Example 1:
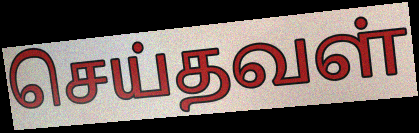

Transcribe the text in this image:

செய்தவள்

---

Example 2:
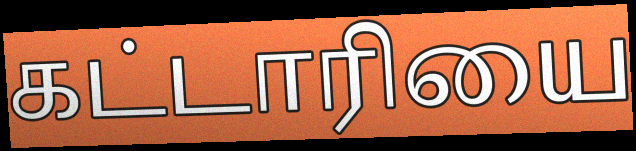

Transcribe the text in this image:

கட்டாரியை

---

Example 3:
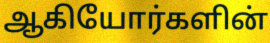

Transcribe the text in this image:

ஆகியோர்களின்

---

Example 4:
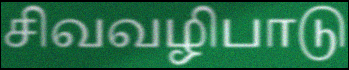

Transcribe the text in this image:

சிவவழிபாடு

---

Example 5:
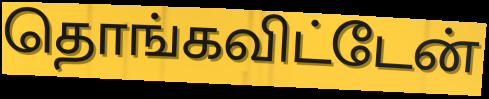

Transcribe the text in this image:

தொங்கவிட்டேன்